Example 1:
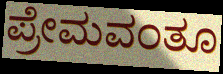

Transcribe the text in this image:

ಪ್ರೇಮವಂತೂ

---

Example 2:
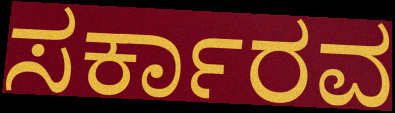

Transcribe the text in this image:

ಸರ್ಕಾರವ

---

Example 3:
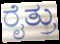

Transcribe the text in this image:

ರೈತ್ರು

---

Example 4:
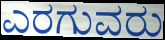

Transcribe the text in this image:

ಎರಗುವರು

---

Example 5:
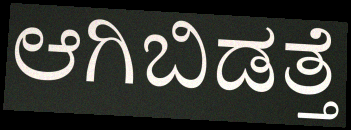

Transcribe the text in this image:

ಆಗಿಬಿಡತ್ತೆ